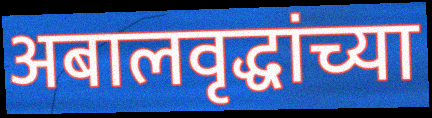
अबालवृद्धांच्या